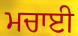
ਮਚਾਈ